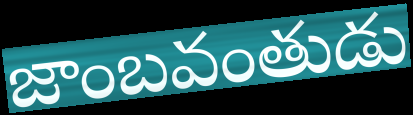
జాంబవంతుడు